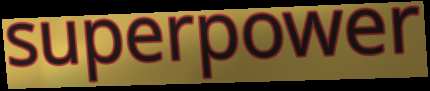
superpower